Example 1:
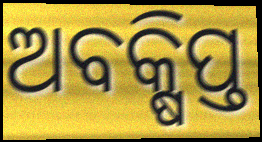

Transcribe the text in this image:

ଅବକ୍ଷିପ୍ତ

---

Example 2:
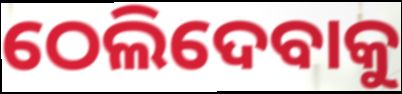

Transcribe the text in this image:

ଠେଲିଦେବାକୁ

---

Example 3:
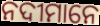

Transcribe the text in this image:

ନଦୀମାନେ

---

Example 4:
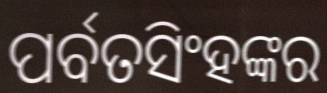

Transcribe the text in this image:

ପର୍ବତସିଂହଙ୍କର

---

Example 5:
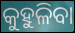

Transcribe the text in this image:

କୁହୁଳିବା